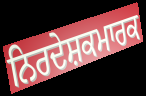
ਨਿਰਦੇਸ਼ਕਮਾਰਕ